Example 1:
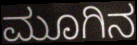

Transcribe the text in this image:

ಮೂಗಿನ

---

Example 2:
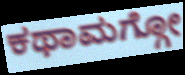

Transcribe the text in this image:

ಕಥಾಮಗ್ಗೋ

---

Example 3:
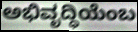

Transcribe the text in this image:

ಅಭಿವೃದ್ಧಿಯೆಂಬ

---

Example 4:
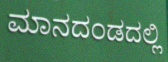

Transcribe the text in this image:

ಮಾನದಂಡದಲ್ಲಿ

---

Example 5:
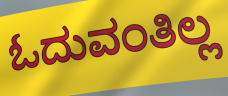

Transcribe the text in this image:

ಓದುವಂತಿಲ್ಲ